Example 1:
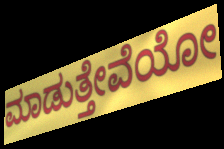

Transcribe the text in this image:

ಮಾಡುತ್ತೇವೆಯೋ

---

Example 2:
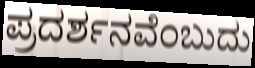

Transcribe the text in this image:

ಪ್ರದರ್ಶನವೆಂಬುದು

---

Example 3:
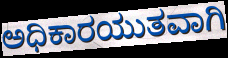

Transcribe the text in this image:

ಅಧಿಕಾರಯುತವಾಗಿ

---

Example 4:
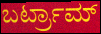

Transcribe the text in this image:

ಬರ್ಟ್ರಾಮ್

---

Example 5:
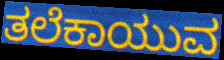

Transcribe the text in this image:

ತಲೆಕಾಯುವ